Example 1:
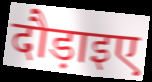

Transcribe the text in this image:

दौड़ाइए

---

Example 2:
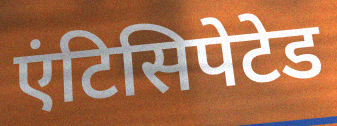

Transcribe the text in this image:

एंटिसिपेटेड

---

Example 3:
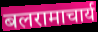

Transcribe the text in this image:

बलरामाचार्य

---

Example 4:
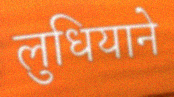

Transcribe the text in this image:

लुधियाने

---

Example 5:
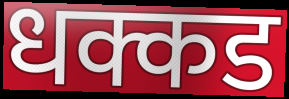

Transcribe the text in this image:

धक्कड